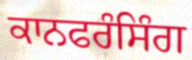
ਕਾਨਫਰੰਸਿੰਗ